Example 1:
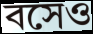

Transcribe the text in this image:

বসেও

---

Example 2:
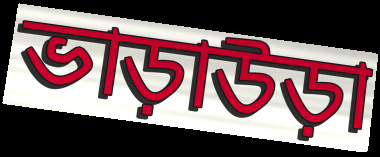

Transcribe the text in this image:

ভাড়াউড়া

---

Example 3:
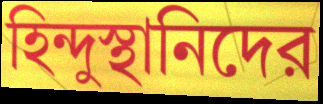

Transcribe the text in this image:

হিন্দুস্থানিদের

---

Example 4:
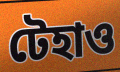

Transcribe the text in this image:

টেহাও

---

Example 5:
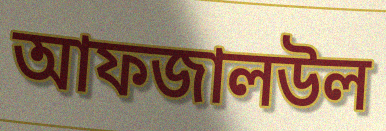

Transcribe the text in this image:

আফজালউল